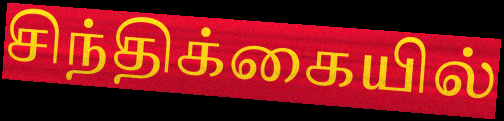
சிந்திக்கையில்